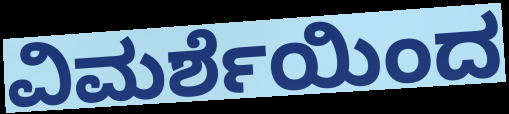
ವಿಮರ್ಶೆಯಿಂದ